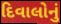
દિવાલોનું